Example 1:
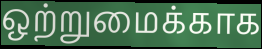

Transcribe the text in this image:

ஒற்றுமைக்காக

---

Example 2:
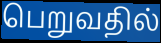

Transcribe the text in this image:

பெறுவதில்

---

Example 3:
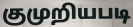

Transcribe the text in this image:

குமுறியபடி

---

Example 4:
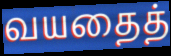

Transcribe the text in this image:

வயதைத்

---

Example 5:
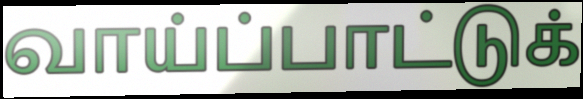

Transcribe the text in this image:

வாய்ப்பாட்டுக்